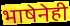
भाषेनेही